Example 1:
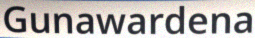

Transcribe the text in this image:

Gunawardena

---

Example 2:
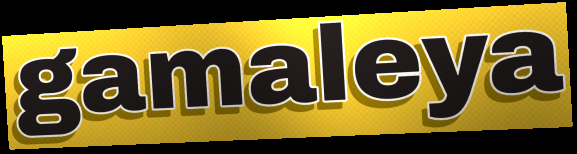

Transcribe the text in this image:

gamaleya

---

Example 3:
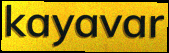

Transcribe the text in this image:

kayavar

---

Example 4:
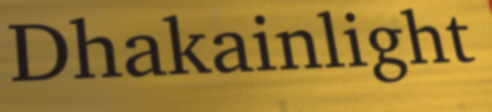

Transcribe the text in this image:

Dhakainlight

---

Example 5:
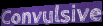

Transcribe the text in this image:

Convulsive